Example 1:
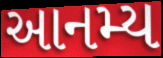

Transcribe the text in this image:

આનમ્ય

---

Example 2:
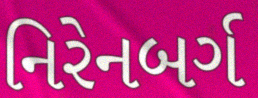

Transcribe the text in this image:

નિરેનબર્ગ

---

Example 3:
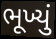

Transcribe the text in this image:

ભૂખ્યું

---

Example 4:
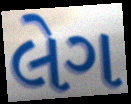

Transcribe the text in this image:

લેગ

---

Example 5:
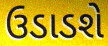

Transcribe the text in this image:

ઉડાડશે